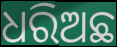
ଧରିଅଛ